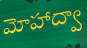
మోహాద్వా